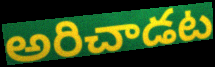
అరిచాడట